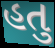
હતુ